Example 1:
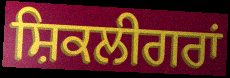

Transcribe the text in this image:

ਸ਼ਿਕਲੀਗਰਾਂ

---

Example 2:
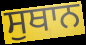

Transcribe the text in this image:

ਸੁਥਾਨ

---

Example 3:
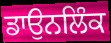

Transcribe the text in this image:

ਡਾਉਨਲਿੰਕ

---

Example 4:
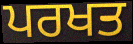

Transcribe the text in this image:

ਪਰਖਤ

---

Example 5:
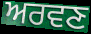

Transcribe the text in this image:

ਅਰਵਣ